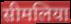
सीमलिया